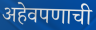
अहेवपणाची